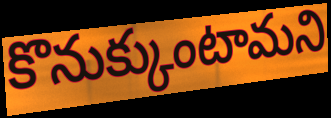
కొనుక్కుంటామని